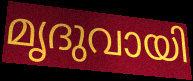
മൃദുവായി